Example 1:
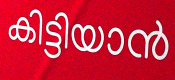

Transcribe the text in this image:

കിട്ടിയാൻ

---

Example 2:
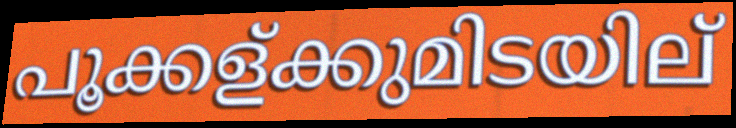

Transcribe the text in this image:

പൂക്കള്ക്കുമിടയില്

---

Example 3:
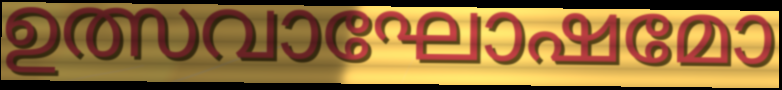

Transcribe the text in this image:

ഉത്സവാഘോഷമോ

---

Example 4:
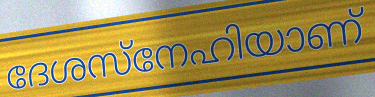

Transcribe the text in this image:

ദേശസ്നേഹിയാണ്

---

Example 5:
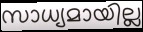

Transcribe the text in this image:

സാധ്യമായില്ല